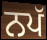
ਨਪੱ